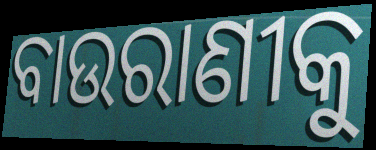
ବାଉରାଣୀକୁ